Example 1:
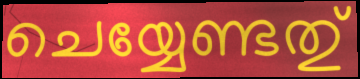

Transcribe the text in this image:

ചെയ്യേണ്ടതു്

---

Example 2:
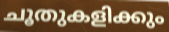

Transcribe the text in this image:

ചൂതുകളിക്കും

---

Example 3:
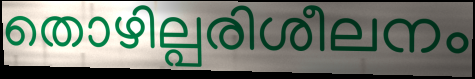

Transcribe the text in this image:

തൊഴില്പരിശീലനം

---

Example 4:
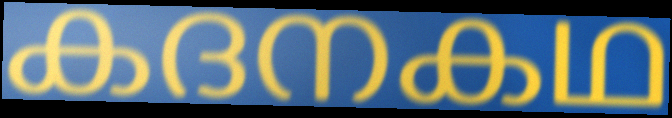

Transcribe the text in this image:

കദനകഥ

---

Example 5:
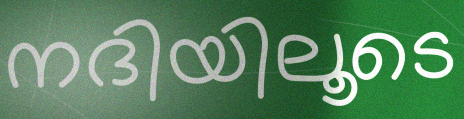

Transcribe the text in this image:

നദിയിലൂടെ